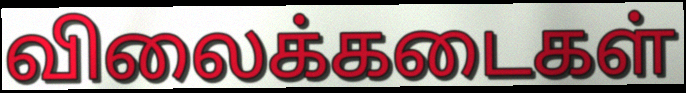
விலைக்கடைகள்